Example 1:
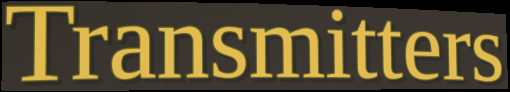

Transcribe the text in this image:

Transmitters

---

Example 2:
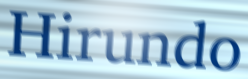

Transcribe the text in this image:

Hirundo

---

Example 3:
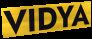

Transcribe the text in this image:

VIDYA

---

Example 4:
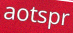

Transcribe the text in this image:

aotspr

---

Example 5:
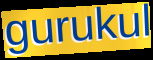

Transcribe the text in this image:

gurukul